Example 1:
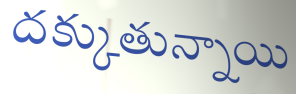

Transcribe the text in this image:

దక్కుతున్నాయి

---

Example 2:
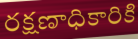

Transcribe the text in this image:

రక్షణాధికారికి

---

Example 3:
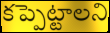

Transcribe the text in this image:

కప్పెట్టాలని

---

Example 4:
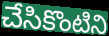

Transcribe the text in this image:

చేసికొంటిని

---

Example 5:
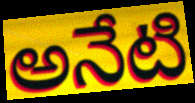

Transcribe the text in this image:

అనేటి